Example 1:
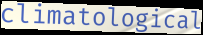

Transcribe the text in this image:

climatological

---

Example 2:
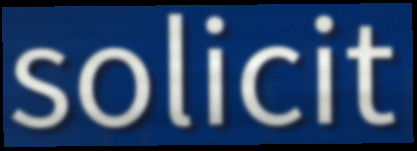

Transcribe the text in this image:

solicit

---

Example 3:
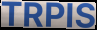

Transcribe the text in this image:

TRPIS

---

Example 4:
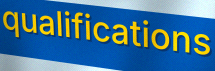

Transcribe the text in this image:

qualifications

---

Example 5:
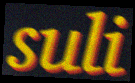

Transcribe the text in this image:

suli